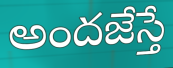
అందజేస్తే